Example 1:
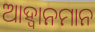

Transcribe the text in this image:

ଆହ୍ୱାନମାନ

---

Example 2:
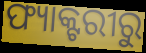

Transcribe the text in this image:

ଫ୍ୟାକ୍ଟରୀରୁ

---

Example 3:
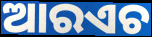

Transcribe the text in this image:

ଆରଏଚ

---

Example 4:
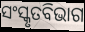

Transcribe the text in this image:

ସଂସ୍କୃତବିଭାଗ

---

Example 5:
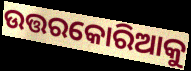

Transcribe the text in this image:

ଉତ୍ତରକୋରିଆକୁ